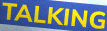
TALKING